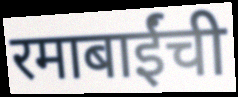
रमाबाईंची